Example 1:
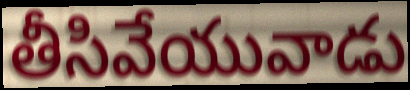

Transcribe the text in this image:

తీసివేయువాడు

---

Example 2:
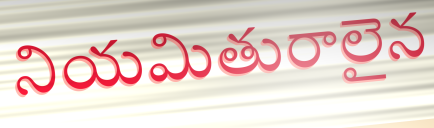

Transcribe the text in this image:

నియమితురాలైన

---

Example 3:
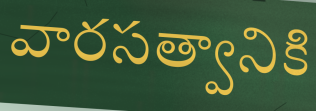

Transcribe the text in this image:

వారసత్వానికి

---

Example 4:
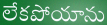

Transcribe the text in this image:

లేకపోయాను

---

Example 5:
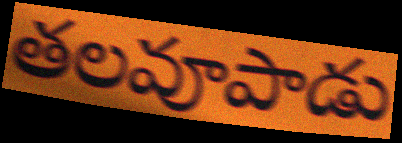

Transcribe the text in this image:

తలవూపాడు